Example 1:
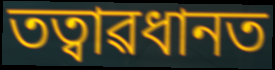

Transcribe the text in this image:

তত্বাৱধানত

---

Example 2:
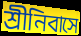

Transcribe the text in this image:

শ্ৰীনিবাসে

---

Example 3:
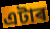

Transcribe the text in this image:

এটাৰ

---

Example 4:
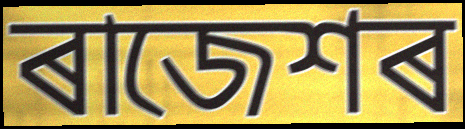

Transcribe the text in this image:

ৰাজেশৰ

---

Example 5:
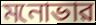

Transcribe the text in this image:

মনোভাৱ